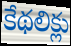
కేథలిక్లు